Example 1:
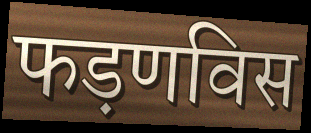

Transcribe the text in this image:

फड़णविस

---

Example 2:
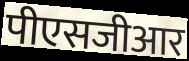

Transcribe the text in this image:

पीएसजीआर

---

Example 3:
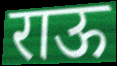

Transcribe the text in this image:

राऊ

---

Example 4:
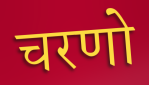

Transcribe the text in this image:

चरणो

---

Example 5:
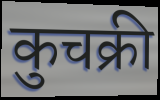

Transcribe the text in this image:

कुचक्री